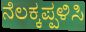
ನೆಲಕ್ಕಪ್ಪಳಿಸಿ